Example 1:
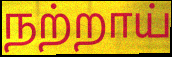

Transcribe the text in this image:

நற்றாய்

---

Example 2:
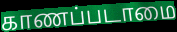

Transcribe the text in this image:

காணப்படாமை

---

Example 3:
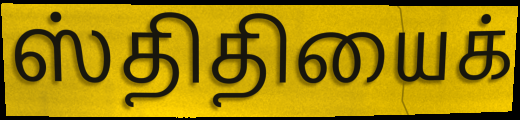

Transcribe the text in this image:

ஸ்திதியைக்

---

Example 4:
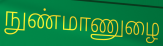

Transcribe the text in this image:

நுண்மாணுழை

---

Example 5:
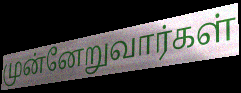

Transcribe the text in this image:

முன்னேறுவார்கள்